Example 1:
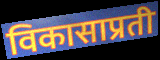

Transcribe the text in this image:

विकासाप्रती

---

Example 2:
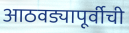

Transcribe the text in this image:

आठवड्यापूर्वीची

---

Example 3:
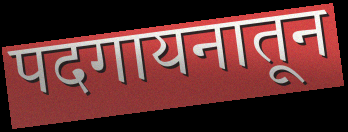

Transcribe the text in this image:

पदगायनातून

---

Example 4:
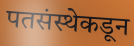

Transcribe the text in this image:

पतसंस्थेकडून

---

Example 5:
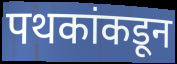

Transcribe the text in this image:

पथकांकडून